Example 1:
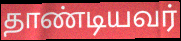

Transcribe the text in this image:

தாண்டியவர்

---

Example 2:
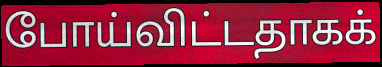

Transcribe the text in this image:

போய்விட்டதாகக்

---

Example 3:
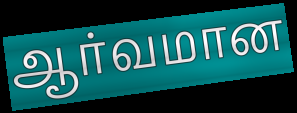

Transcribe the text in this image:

ஆர்வமான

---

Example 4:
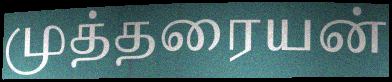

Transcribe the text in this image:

முத்தரையன்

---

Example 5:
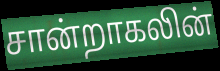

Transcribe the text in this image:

சான்றாகலின்